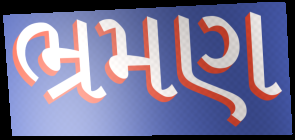
ભ્રમણ